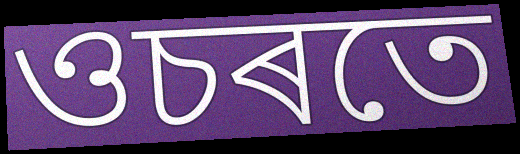
ওচৰতে